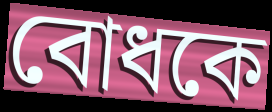
বোধকে